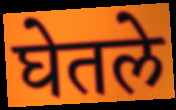
घेतले